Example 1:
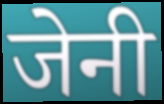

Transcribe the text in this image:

जेनी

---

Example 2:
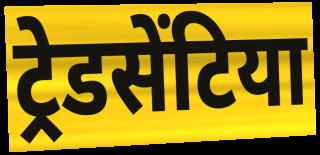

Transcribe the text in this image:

ट्रेडसेंटिया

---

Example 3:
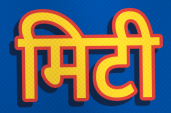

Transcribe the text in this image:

मिटी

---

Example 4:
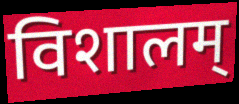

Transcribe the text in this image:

विशालम्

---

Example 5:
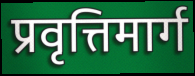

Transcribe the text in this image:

प्रवृत्तिमार्ग